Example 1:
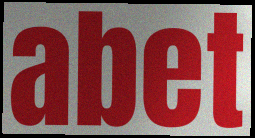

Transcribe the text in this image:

abet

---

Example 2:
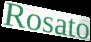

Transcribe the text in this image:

Rosato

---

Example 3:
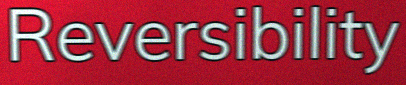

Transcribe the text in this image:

Reversibility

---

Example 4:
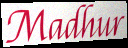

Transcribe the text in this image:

Madhur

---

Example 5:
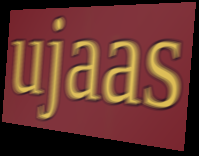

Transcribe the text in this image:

ujaas